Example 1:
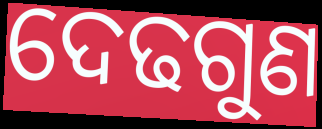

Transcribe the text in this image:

ଦେଢଗୁଣ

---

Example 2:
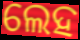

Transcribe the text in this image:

ଲେହ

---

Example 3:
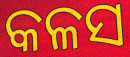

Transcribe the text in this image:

କଳସ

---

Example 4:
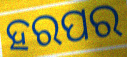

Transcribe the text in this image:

ହରପର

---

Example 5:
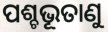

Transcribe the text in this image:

ପଶ୍ଚଭୂତାଣୁ